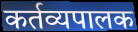
कर्तव्यपालक